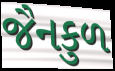
જૈનકુળ